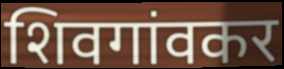
शिवगांवकर